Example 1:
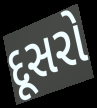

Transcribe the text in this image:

દૂસરો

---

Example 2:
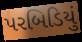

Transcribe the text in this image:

પરબિડિયું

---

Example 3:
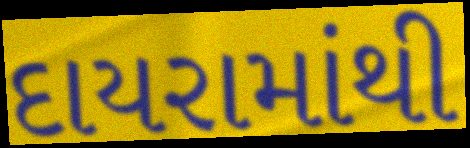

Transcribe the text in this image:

દાયરામાંથી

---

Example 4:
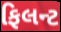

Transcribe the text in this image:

ફિલન્ટ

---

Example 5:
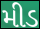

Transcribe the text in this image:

મીડ